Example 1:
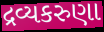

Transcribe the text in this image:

દ્રવ્યકરુણા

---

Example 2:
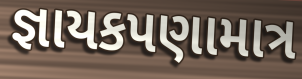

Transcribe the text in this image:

જ્ઞાયકપણામાત્ર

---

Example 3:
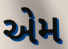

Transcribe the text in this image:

એેમ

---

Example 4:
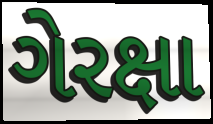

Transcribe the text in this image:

ગેરક્ષા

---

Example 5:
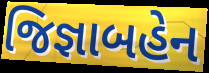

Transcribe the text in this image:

જિજ્ઞાબહેન